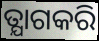
ତ୍ଯାଗକରି